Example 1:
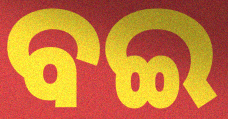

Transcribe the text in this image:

ବଇ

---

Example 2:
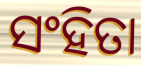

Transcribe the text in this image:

ସଂହିତା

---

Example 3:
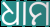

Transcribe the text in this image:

ଧାମ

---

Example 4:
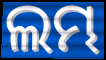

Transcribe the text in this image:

ଲମ୍ଭ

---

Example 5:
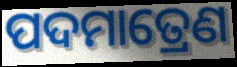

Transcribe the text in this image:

ପଦମାତ୍ରେଣ